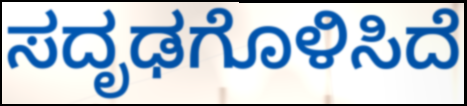
ಸದೃಢಗೊಳಿಸಿದೆ